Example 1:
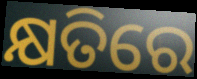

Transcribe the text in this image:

କ୍ଷତିରେ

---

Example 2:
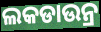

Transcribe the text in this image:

ଲକଡାଉନ୍ର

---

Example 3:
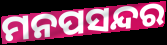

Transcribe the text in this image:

ମନପସନ୍ଦର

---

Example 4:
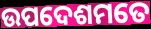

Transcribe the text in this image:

ଉପଦେଶମତେ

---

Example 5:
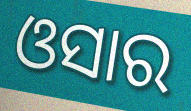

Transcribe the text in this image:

ଓସାର